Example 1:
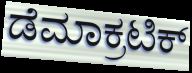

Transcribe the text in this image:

ಡೆಮಾಕ್ರಟಿಕ್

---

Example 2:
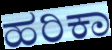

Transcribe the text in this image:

ಹರಿಕಾ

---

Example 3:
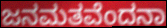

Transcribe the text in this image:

ಜನಮತವೆಂದನಾ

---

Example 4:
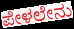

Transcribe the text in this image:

ಪೇಳಲೇನು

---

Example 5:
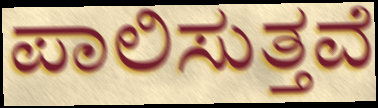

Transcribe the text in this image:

ಪಾಲಿಸುತ್ತವೆ